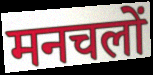
मनचलों